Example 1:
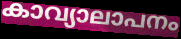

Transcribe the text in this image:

കാവ്യാലാപനം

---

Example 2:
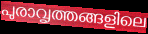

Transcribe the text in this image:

പുരാവൃത്തങ്ങളിലെ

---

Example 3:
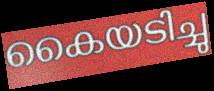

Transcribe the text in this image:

കൈയടിച്ചു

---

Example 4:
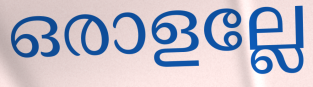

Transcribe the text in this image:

ഒരാളല്ലേ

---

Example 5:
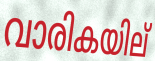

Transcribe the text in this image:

വാരികയില്